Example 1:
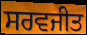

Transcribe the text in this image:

ਸਰਵਜੀਤ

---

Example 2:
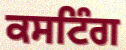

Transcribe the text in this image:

ਕਸਟਿੰਗ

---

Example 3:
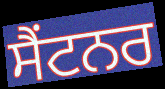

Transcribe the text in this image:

ਸੈਂਟਨਰ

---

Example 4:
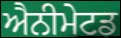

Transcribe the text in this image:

ਐਨੀਮੇਟਡ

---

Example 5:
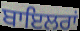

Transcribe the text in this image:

ਬਾਇਲਰਾਂ